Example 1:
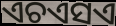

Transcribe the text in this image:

ଏଚଏସଏ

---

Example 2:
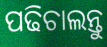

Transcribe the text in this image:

ପଢିଚାଲନ୍ତୁ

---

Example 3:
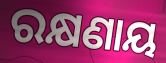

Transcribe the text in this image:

ରକ୍ଷଣାୟ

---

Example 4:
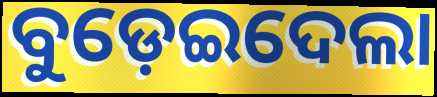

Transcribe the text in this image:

ବୁଡ଼େଇଦେଲା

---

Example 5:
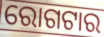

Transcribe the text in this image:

ରୋଗଟାର